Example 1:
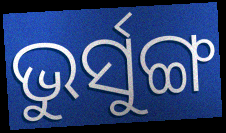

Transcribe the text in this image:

ଭୁର୍ସୁଙ୍ଗ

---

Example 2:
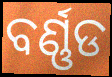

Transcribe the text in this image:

ବର୍ଣ୍ଣଡ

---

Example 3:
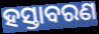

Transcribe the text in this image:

ହସ୍ତାବରଣ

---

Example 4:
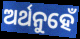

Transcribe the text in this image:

ଅର୍ଥନୁହେଁ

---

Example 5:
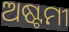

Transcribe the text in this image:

ଅଷ୍ଟମୀ